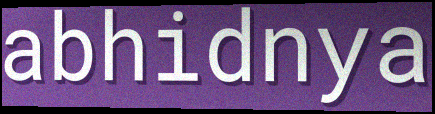
abhidnya